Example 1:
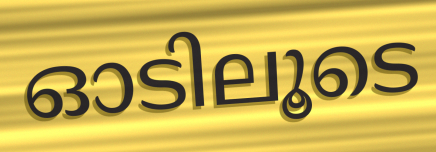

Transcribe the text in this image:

ഓടിലൂടെ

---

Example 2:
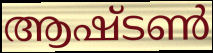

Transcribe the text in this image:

ആഷ്ടൺ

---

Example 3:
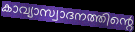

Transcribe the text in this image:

കാവ്യാസ്വാദനത്തിന്റെ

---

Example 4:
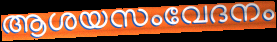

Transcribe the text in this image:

ആശയസംവേദനം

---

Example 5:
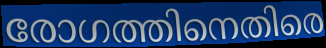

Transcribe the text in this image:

രോഗത്തിനെതിരെ